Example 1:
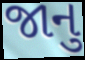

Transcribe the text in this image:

જાનુ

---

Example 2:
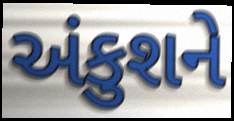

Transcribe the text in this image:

અંકુશને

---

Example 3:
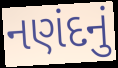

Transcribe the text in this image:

નણંદનું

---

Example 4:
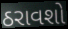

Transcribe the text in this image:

ઠરાવશો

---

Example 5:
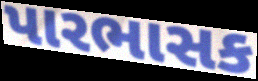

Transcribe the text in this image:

પારભાસક